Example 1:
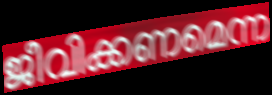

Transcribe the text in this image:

ജീവിക്കണമെന്ന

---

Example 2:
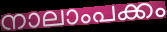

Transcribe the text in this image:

നാലാംപക്കം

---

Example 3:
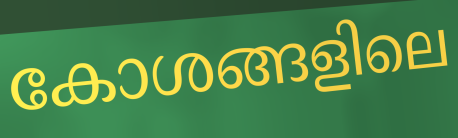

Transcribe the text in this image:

കോശങ്ങളിലെ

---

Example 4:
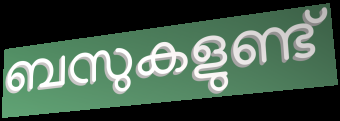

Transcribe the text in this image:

ബസുകളുണ്ട്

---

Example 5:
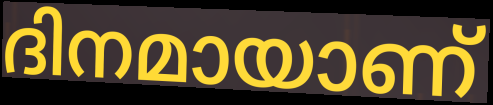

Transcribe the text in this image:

ദിനമായാണ്